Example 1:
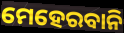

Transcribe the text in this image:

ମେହେରବାନି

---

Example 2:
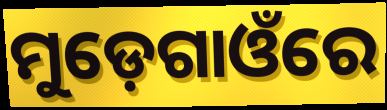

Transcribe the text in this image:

ମୁଡ଼େଗାଓଁରେ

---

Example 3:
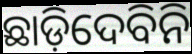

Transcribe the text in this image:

ଛାଡ଼ିଦେବିନି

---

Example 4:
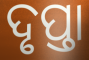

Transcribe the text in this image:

ଦୃପ୍ତା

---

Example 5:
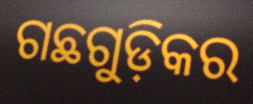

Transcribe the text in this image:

ଗଛଗୁଡ଼ିକର